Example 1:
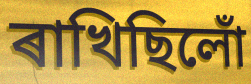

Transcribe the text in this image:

ৰাখিছিলোঁ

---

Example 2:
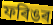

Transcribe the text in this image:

ফৰিঙৰ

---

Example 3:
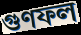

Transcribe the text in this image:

গুণফল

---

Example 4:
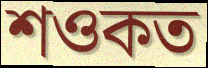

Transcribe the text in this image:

শওকত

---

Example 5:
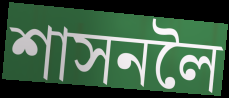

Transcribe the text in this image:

শাসনলৈ